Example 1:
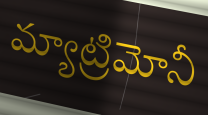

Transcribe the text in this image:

మ్యాట్రిమోనీ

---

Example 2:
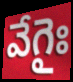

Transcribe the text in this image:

వేగైః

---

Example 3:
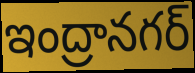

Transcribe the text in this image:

ఇంద్రానగర్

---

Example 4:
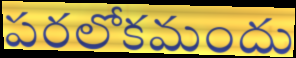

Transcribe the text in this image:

పరలోకమందు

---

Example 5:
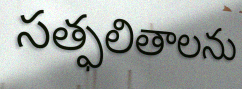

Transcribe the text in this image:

సత్ఫలితాలను